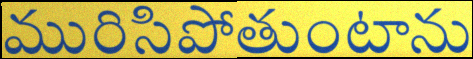
మురిసిపోతుంటాను